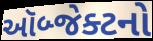
ઑબ્જેક્ટનો